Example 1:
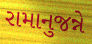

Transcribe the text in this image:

રામાનુજન્ને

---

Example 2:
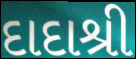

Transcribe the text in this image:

દાદાશ્રી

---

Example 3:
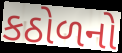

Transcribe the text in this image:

કઠોળનો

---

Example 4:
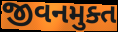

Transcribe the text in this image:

જીવનમુક્ત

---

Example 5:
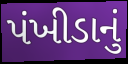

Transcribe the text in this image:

પંખીડાનું